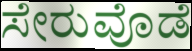
ಸೇರುವೊಡೆ